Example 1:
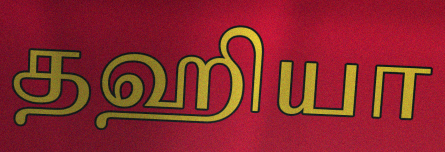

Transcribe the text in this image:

தஹியா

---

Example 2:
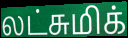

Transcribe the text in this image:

லட்சுமிக்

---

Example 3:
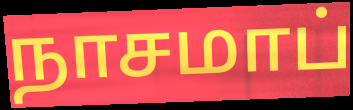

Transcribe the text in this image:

நாசமாப்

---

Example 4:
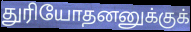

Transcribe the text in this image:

துரியோதனனுக்குக்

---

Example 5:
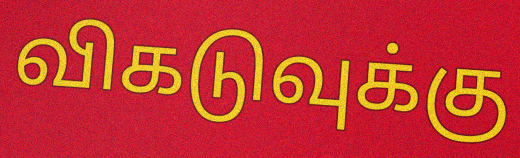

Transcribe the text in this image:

விகடுவுக்கு